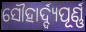
ସୌହାର୍ଦ୍ଦ୍ୟପୂର୍ଣ୍ଣ